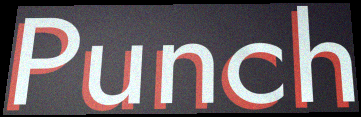
Punch